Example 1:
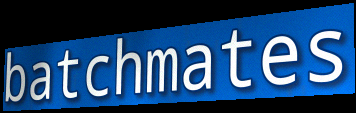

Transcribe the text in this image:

batchmates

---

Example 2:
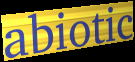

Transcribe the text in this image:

abiotic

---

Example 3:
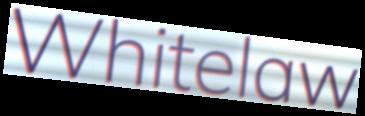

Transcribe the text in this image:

Whitelaw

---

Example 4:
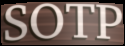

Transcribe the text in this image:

SOTP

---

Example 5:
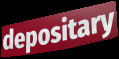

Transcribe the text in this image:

depositary